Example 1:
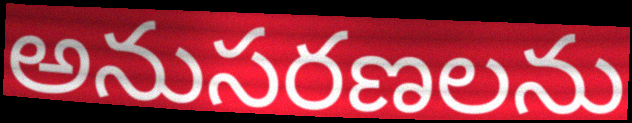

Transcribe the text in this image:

అనుసరణలను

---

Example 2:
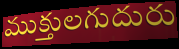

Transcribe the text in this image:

ముక్తులగుదురు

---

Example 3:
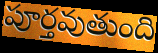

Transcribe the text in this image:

పూర్తవుతుంది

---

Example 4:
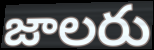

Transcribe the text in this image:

జాలరు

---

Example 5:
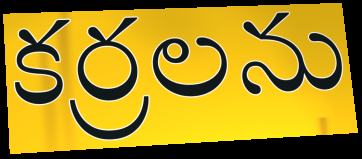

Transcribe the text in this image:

కర్రలను